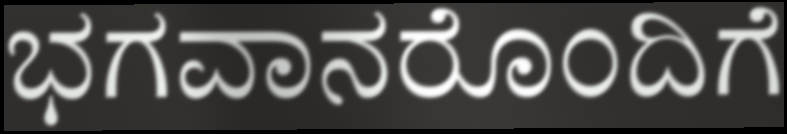
ಭಗವಾನರೊಂದಿಗೆ